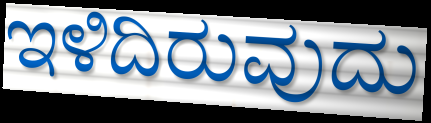
ಇಳಿದಿರುವುದು